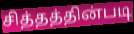
சித்தத்தின்படி